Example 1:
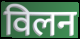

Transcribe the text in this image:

विलन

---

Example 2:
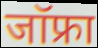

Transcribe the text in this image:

जॉफ्रा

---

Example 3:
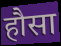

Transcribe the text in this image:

हौसा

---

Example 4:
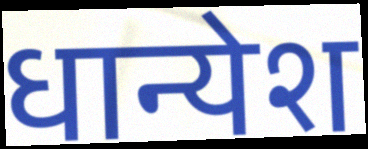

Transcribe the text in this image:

धान्येश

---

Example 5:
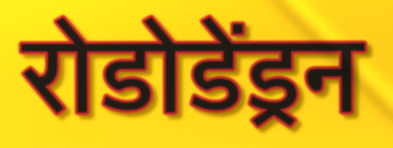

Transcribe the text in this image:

रोडोडेंड्रन